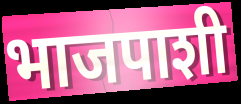
भाजपाशी